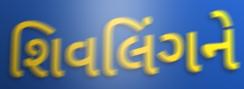
શિવલિંગને